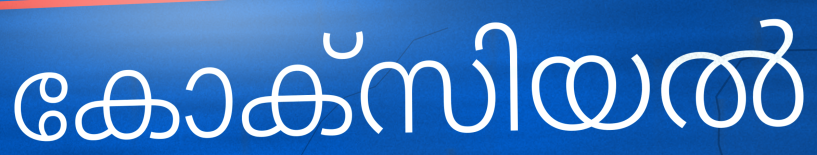
കോക്സിയൽ